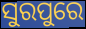
ସୁରପୁରେ